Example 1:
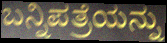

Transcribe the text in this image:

ಬನ್ನಿಪತ್ರೆಯನ್ನು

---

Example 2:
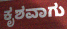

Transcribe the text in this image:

ಕೃಶವಾಗು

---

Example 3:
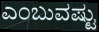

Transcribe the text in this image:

ಎಂಬುವಷ್ಟು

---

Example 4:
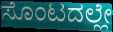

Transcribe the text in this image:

ಸೊಂಟದಲ್ಲೇ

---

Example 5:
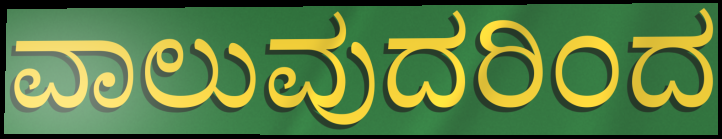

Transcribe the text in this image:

ವಾಲುವುದರಿಂದ